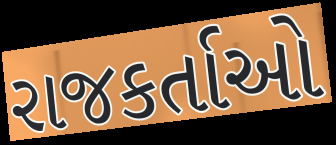
રાજકર્તાઓ